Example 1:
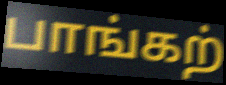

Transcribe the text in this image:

பாங்கற்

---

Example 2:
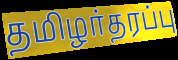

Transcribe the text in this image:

தமிழர்தரப்பு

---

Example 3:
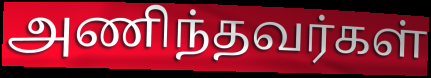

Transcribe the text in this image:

அணிந்தவர்கள்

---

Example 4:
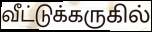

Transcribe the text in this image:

வீட்டுக்கருகில்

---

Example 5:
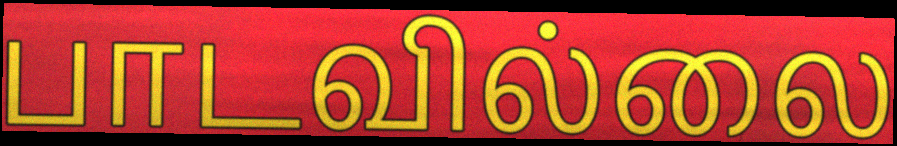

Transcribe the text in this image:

பாடவில்லை